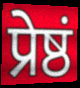
प्रेष्ठं